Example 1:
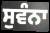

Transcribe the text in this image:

ਸੁਵੰਨਾ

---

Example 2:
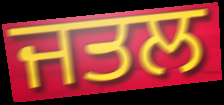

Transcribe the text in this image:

ਜਤਲ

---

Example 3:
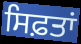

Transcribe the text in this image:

ਸਿਫ਼ਤਾਂ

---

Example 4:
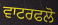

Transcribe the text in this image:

ਵਾਟਰਫਲੋ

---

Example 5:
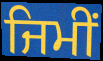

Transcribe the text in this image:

ਜਿਮੀਂ